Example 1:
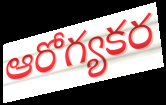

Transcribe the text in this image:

ఆరోగ్యకర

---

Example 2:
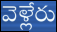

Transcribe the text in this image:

వెళ్లేరు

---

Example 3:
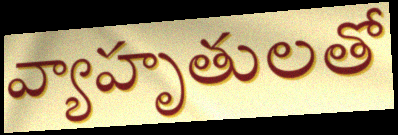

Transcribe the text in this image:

వ్యాహృతులతో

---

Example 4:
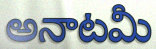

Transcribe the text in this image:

అనాటమీ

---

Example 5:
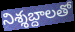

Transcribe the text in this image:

నిశ్శబ్దాలతో